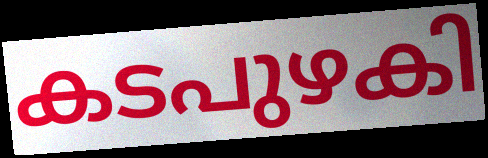
കടപുഴകി